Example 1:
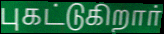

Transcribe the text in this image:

புகட்டுகிறார்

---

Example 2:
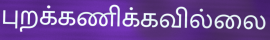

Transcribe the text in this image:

புறக்கணிக்கவில்லை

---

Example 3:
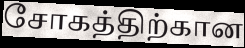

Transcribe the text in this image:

சோகத்திற்கான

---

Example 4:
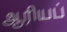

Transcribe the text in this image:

ஆரியப்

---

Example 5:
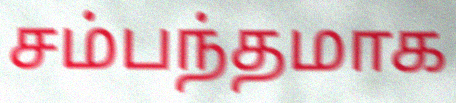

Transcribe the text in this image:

சம்பந்தமாக